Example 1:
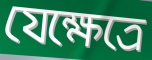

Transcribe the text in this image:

যেক্ষেত্রে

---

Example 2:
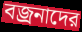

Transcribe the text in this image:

বজ্রনাদের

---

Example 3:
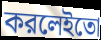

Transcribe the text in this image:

করলেইতো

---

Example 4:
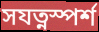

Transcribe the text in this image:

সযত্নস্পর্শ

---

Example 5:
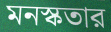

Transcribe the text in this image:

মনস্কতার